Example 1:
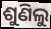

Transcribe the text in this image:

ଶୁଣିଲୁ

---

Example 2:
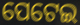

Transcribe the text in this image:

ପେଟେଇ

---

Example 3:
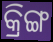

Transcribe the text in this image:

କ୍ରିଙ୍ଗ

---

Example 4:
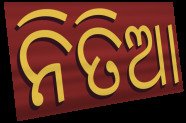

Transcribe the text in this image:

ନିତିଆ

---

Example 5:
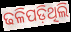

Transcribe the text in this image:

ଢଳିପଡ଼ିଥିଲି